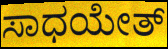
ಸಾಧಯೇತ್